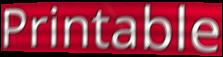
Printable